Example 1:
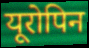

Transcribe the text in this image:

यूरोपिन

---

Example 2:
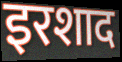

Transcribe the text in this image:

इरशाद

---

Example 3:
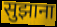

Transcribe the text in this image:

सुझाना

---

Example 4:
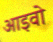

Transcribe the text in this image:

आइवो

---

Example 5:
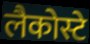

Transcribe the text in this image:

लैकोस्टे